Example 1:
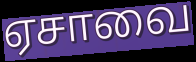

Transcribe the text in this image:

ஏசாவை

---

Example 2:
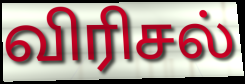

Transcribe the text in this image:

விரிசல்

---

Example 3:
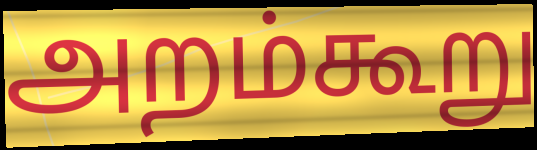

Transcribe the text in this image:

அறம்கூறு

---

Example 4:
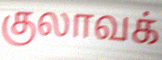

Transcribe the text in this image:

குலாவக்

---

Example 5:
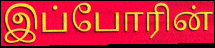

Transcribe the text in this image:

இப்போரின்